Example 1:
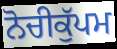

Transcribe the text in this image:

ਨੋਚੀਕੁੱਪਮ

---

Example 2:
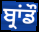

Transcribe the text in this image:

ਬ੍ਰਾਂਡੌ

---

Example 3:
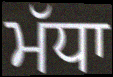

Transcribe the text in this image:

ਮੱਧਾ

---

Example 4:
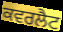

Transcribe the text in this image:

ਕਵਰਲੈਟ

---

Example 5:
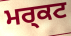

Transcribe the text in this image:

ਮਰ੍ਕਟ